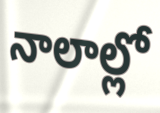
నాలాల్లో